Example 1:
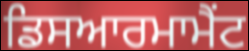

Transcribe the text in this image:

ਡਿਸਆਰਮਾਮੈਂਟ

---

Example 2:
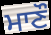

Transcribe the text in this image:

ਮਾਣੌ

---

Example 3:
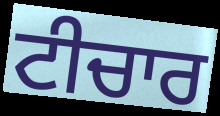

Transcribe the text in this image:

ਟੀਚਾਰ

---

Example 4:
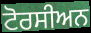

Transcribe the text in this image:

ਟੋਰਸੀਅਨ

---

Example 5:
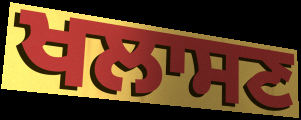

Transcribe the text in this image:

ਖਲਾਸਣ